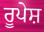
ਰੂਪੇਸ਼